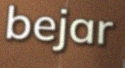
bejar